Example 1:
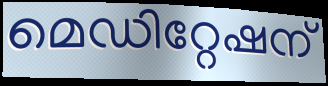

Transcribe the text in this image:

മെഡിറ്റേഷന്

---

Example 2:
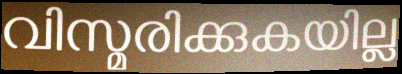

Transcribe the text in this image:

വിസ്മരിക്കുകയില്ല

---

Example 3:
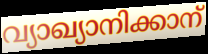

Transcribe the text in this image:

വ്യാഖ്യാനിക്കാന്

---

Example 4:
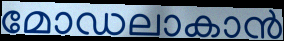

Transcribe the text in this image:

മോഡലാകാൻ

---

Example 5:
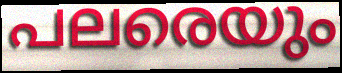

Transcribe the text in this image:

പലരെയും